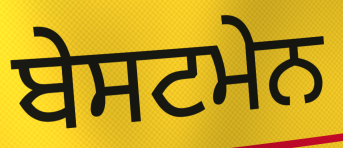
ਬੇਸਟਮੇਨ